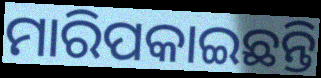
ମାରିପକାଇଛନ୍ତି